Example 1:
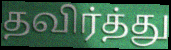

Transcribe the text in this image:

தவிர்த்து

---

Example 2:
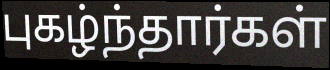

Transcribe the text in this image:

புகழ்ந்தார்கள்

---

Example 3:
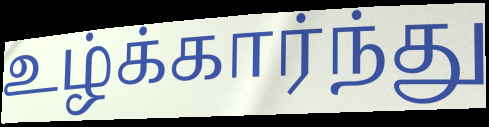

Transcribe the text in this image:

உழ்க்கார்ந்து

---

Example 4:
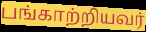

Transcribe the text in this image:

பங்காற்றியவர்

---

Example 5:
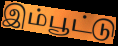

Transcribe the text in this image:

இம்பூட்டு